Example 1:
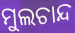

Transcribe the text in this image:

ମୁଲଚାନ୍ଦ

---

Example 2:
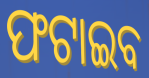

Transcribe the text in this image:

ଫଟାଇବ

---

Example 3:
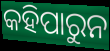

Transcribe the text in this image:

କହିପାରୁନ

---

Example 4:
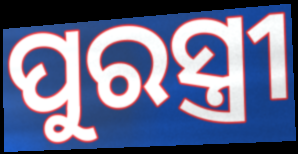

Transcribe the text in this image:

ପୁରସ୍ତ୍ରୀ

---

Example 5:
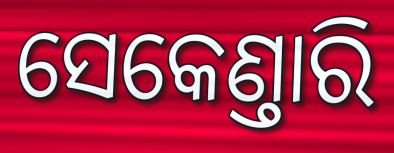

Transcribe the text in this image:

ସେକେଣ୍ତାରି